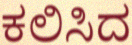
ಕಲಿಸಿದ